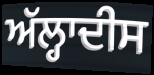
ਅੱਲ੍ਹਾਦੀਸ